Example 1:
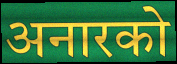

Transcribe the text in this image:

अनारको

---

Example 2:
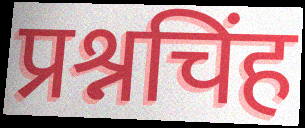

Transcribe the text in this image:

प्रश्नचिंह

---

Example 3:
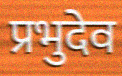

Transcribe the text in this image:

प्रभुदेव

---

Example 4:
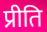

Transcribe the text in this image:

प्रीति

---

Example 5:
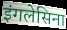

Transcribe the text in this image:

इंगलेसिना